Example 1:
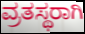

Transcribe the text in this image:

ವ್ರತಸ್ಥರಾಗಿ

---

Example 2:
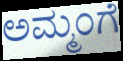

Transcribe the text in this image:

ಅಮ್ಮಂಗೆ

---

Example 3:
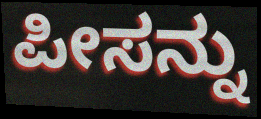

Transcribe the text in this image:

ಪೀಸನ್ನು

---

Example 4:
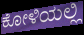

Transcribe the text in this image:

ಕೋಳಿಯಲ್ಲಿ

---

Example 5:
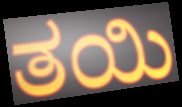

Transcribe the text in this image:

ತಯಿ